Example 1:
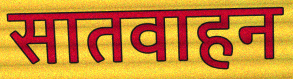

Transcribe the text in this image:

सातवाहन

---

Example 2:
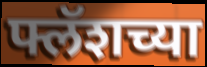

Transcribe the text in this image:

फ्लॅशच्या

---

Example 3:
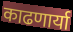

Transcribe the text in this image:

काढणार्या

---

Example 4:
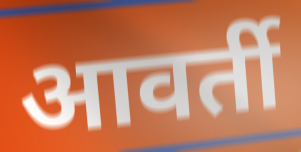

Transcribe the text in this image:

आवर्ती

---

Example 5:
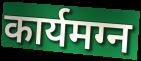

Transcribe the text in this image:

कार्यमग्न